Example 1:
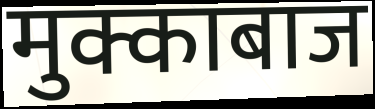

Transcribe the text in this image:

मुक्काबाज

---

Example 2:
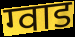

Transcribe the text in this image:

ग्वाड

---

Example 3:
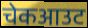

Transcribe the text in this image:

चेकआउट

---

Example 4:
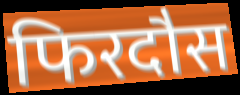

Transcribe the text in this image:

फिरदौस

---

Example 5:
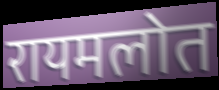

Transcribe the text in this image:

रायमलोत